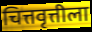
चित्तवृत्तीला